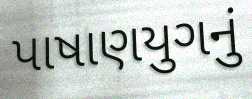
પાષાણયુગનું